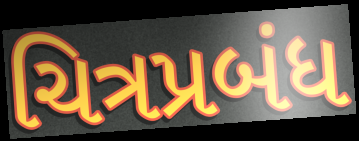
ચિત્રપ્રબંધ